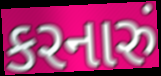
કરનારું